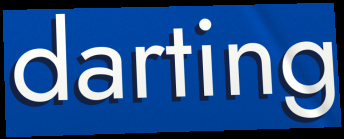
darting